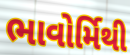
ભાવોર્મિથી